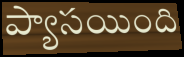
ప్యాసయింది